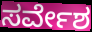
ಸರ್ವೇಶ